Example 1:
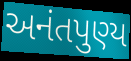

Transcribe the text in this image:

અનંતપુણ્ય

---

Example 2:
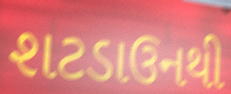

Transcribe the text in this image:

શટડાઉનથી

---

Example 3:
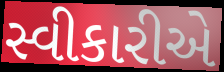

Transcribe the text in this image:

સ્વીકારીએ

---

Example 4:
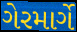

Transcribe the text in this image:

ગેરમાર્ગે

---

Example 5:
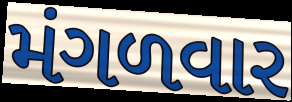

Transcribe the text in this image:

મંગળવાર